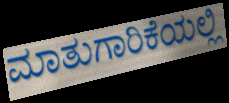
ಮಾತುಗಾರಿಕೆಯಲ್ಲಿ